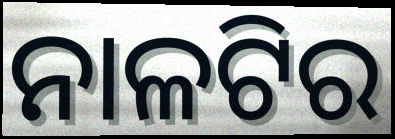
ନାଳଟିର